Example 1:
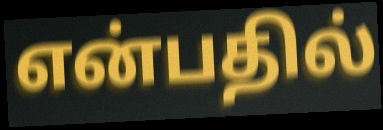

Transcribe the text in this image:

என்பதில்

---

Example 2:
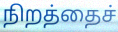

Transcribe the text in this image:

நிறத்தைச்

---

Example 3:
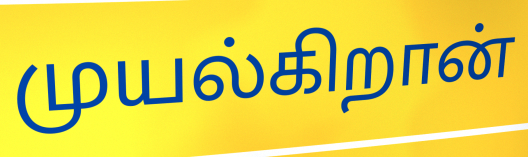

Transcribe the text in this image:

முயல்கிறான்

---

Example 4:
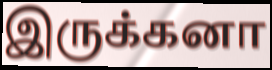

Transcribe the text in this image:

இருக்கனா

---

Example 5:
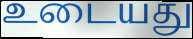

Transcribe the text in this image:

உடையது